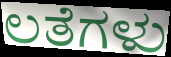
ಲತೆಗಳು